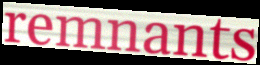
remnants